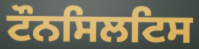
ਟੌਨਸਿਲਟਿਸ